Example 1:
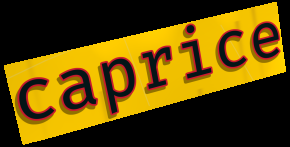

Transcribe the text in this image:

caprice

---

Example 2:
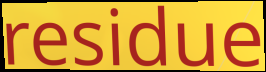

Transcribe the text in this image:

residue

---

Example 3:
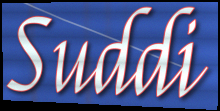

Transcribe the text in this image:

Suddi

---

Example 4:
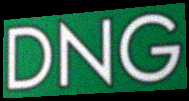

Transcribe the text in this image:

DNG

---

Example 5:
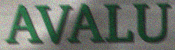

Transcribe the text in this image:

AVALU